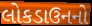
લોકડાઉનનો